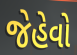
જેહેવો